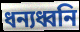
ধন্যধ্বনি